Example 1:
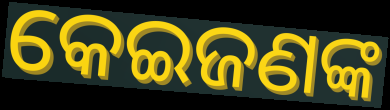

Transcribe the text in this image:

କେଇଜଣଙ୍କ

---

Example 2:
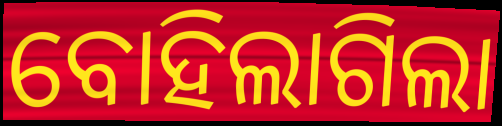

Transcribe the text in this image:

ବୋହିଲାଗିଲା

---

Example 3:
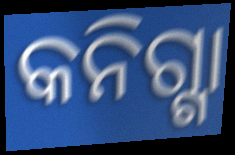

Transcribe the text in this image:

କନିଗ୍ଗା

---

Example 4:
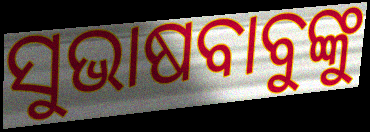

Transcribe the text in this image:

ସୁଭାଷବାବୁଙ୍କୁ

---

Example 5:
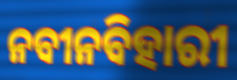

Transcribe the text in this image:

ନବୀନବିହାରୀ